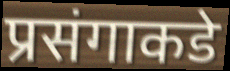
प्रसंगाकडे